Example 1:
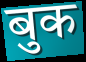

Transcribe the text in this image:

बुक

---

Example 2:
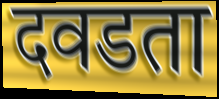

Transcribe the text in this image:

दवडता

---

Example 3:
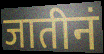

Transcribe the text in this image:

जातीनं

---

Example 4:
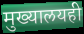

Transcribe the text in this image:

मुख्यालयही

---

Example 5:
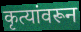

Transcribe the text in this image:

कृत्यांवरून